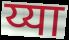
य्या